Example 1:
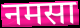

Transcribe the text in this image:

नमसा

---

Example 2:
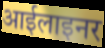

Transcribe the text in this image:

आईलाइनर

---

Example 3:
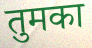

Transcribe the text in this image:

तुमका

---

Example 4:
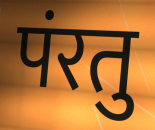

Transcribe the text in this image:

पंरतु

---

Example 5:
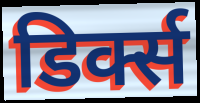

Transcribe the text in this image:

डिर्क्स